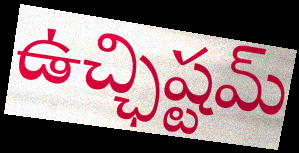
ఉచ్ఛిష్టమ్